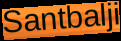
Santbalji